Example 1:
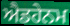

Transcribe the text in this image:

ਐਡਹੇਨਮ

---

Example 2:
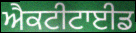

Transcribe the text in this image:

ਐਕਟੀਟਾਈਡ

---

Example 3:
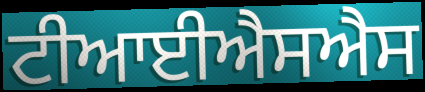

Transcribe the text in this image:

ਟੀਆਈਐਸਐਸ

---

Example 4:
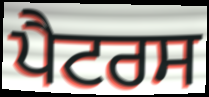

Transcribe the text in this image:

ਪੈਟਰਸ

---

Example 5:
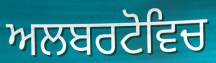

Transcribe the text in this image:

ਅਲਬਰਟੋਵਿਚ